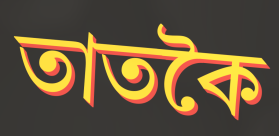
তাতকৈ